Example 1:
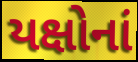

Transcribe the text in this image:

યક્ષોનાં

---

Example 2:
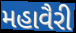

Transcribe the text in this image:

મહાવૈરી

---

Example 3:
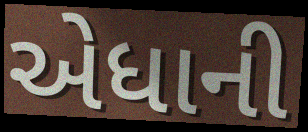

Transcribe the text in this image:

એધાની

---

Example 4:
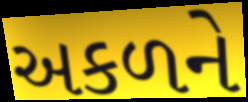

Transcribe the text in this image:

અકળને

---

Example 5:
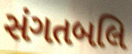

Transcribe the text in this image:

સંગતબલિ